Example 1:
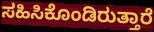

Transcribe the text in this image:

ಸಹಿಸಿಕೊಂಡಿರುತ್ತಾರೆ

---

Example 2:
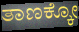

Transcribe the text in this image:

ತಾಣಕ್ಕೋ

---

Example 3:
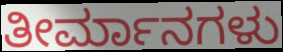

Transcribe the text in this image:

ತೀರ್ಮಾನಗಳು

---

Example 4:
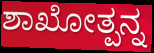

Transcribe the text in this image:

ಶಾಖೋತ್ಪನ್ನ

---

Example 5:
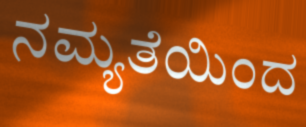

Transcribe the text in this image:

ನಮ್ಯತೆಯಿಂದ